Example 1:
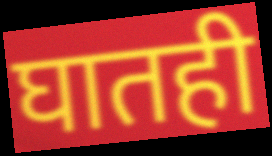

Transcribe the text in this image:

घातही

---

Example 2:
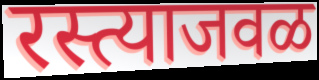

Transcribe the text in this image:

रस्त्याजवळ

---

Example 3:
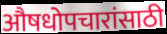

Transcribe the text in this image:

औषधोपचारांसाठी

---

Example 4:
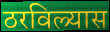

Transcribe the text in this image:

ठरविल्यास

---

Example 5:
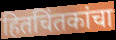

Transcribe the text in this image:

हितचिंतकांचा